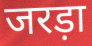
जरड़ा